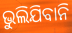
ଭୁଲିଯିବାନି